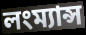
লংম্যান্স